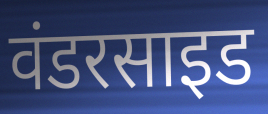
वंडरसाइड